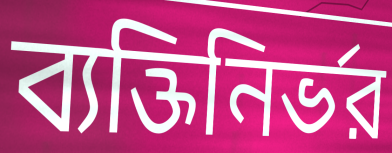
ব্যক্তিনির্ভর